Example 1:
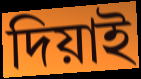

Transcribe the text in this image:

দিয়াই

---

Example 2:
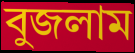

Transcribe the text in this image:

বুজলাম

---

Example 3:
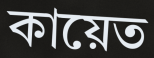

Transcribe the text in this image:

কায়েত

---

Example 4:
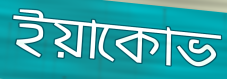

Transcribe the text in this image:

ইয়াকোভ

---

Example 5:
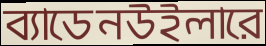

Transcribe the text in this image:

ব্যাডেনউইলারে